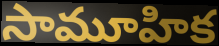
సామూహిక